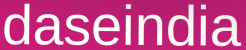
daseindia